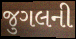
જુગલની